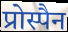
प्रोस्पैन